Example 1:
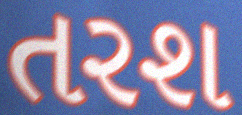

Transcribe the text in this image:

તરશ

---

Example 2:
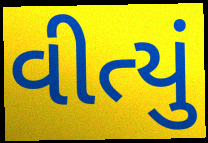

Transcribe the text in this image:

વીત્યું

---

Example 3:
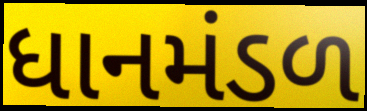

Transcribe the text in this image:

ધાનમંડળ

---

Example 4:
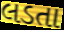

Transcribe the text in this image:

લડતા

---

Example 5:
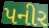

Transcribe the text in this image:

પનીર